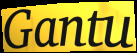
Gantu